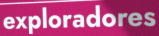
exploradores